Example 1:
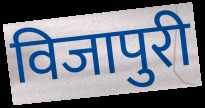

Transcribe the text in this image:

विजापुरी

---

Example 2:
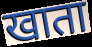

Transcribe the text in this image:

खाता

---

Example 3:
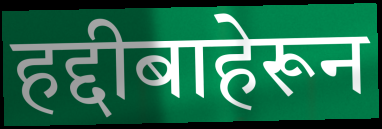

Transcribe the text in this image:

हद्दीबाहेरून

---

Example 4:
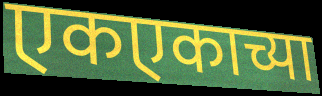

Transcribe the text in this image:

एकएकाच्या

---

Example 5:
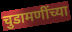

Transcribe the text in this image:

चुडामणींच्या